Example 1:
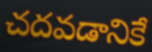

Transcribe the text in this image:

చదవడానికే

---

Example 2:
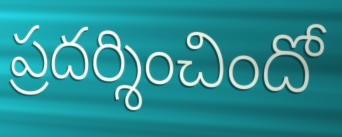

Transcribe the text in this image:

ప్రదర్శించిందో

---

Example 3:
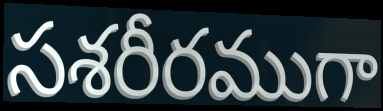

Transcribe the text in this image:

సశరీరముగా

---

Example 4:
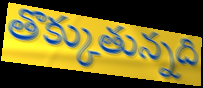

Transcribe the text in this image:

తొక్కుతున్నది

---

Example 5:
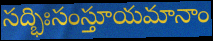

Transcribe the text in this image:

సద్భిఃసంస్తూయమానాం